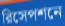
রিসেপশনে